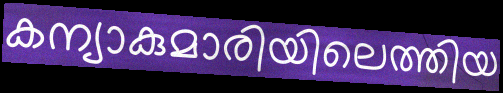
കന്യാകുമാരിയിലെത്തിയ